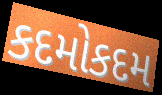
કદમોકદમ